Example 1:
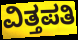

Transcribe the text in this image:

ವಿತ್ತಪತಿ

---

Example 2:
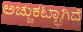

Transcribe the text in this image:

ಅಚ್ಚುಕಟ್ಟಾಗಿದೆ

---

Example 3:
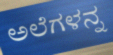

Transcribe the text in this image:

ಅಲೆಗಳನ್ನ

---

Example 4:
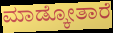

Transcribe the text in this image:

ಮಾಡ್ಕೋತಾರೆ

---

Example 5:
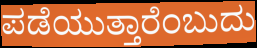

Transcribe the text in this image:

ಪಡೆಯುತ್ತಾರೆಂಬುದು